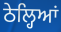
ਠੇਲ੍ਹਿਆਂ